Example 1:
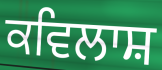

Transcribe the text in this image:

ਕਵਿਲਾਸ਼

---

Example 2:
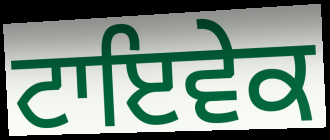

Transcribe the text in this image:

ਟਾਇਵੇਕ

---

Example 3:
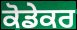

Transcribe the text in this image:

ਕੋਡੇਕਰ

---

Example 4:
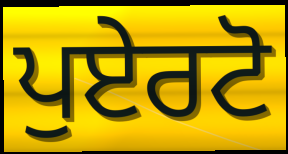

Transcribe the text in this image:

ਪੁਏਰਟੋ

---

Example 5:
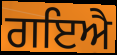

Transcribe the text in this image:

ਗਇਐ